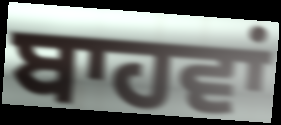
ਬਾਹਵਾਂ